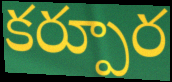
కర్పూర